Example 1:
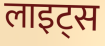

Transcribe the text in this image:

लाइट्स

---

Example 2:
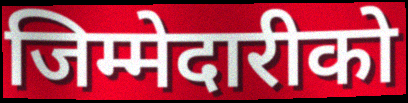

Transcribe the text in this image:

जिम्मेदारीको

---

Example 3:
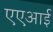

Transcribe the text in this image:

एएआई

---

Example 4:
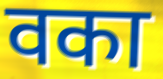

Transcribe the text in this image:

वका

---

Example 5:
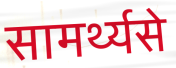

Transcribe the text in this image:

सामर्थ्यसे